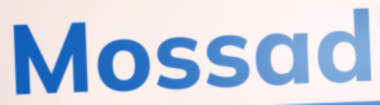
Mossad